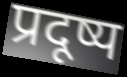
प्रदूष्य